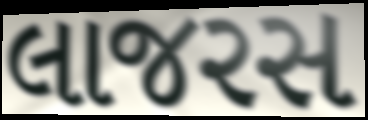
લાજરસ